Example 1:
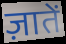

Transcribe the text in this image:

ज़ातें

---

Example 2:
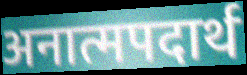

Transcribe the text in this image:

अनात्मपदार्थ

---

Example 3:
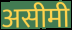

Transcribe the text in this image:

असीमी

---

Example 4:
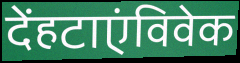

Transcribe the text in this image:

देंहटाएंविवेक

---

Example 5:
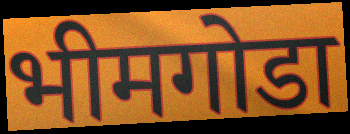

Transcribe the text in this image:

भीमगोडा